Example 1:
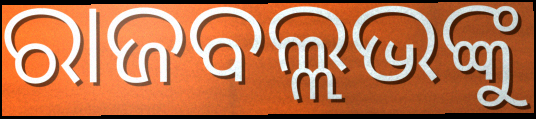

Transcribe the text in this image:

ରାଜବଲ୍ଲଭଙ୍କୁ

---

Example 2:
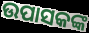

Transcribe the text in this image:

ଉପାସକଙ୍କ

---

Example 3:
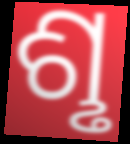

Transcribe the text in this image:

ଶୢ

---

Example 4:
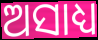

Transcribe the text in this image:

ଅସାଧ୍ୟ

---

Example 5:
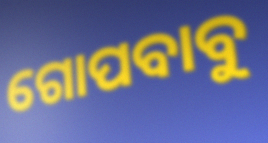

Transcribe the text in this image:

ଗୋପବାବୁ